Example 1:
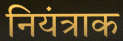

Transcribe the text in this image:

नियंत्राक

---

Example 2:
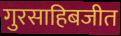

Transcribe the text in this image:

गुरसाहिबजीत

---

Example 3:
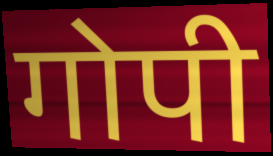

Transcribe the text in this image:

गोपी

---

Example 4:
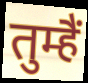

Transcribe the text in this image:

तुम्हैं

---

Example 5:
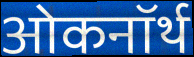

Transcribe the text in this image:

ओकनॉर्थ